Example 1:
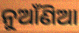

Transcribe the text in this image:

ନୁଆଁଣିଆ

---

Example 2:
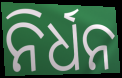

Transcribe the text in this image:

ନିର୍ଧନ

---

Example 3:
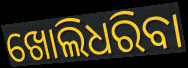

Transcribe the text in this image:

ଖୋଲିଧରିବା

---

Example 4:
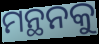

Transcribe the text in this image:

ମନ୍ଥନକୁ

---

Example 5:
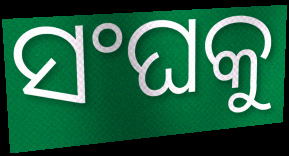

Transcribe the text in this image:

ସଂଘକୁ